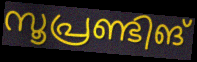
സൂപ്രണ്ടിങ്